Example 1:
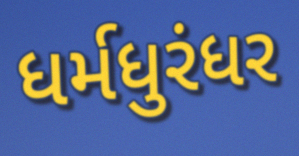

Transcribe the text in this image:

ધર્મધુરંધર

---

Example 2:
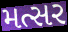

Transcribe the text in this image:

મત્સર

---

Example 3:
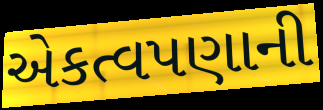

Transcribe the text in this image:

એકત્વપણાની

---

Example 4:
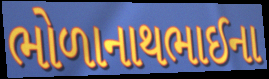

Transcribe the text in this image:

ભોળાનાથભાઈના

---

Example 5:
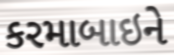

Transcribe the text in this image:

કરમાબાઇને